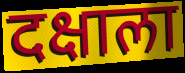
दक्षाला